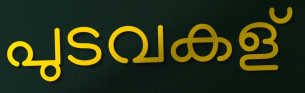
പുടവകള്